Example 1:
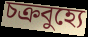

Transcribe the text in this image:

চক্রবুহ্যে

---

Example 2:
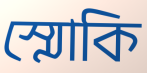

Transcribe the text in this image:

স্মোকি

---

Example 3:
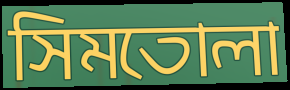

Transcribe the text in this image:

সিমতোলা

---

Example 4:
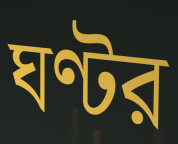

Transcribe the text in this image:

ঘণ্টর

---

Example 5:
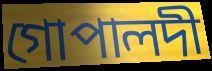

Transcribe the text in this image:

গোপালদী